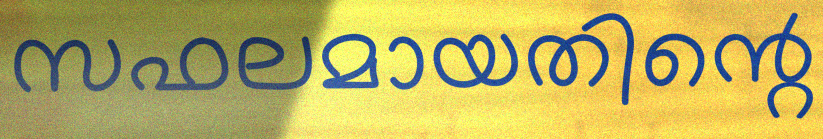
സഫലമായതിന്റെ